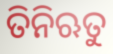
ତିନିଋତୁ